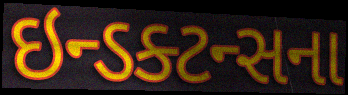
ઇન્ડક્ટન્સના